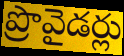
ప్రొవైడర్లు